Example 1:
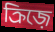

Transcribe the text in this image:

ক্রিজ়ে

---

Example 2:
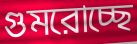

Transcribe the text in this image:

গুমরোচ্ছে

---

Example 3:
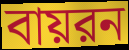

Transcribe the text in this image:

বায়রন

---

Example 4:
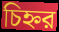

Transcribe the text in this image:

চিহ্নর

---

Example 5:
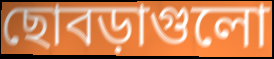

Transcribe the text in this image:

ছোবড়াগুলো